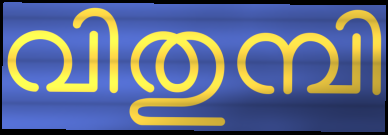
വിതുമ്പി